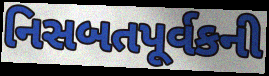
નિસબતપૂર્વકની